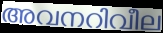
അവനറിവീല